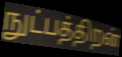
நுட்பத்திறன்